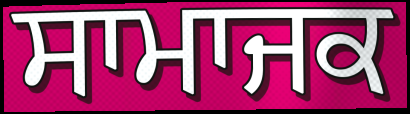
ਸਾਮਾਜਕ